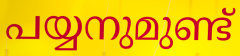
പയ്യനുമുണ്ട്